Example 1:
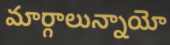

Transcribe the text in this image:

మార్గాలున్నాయో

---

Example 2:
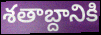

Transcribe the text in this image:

శతాబ్దానికి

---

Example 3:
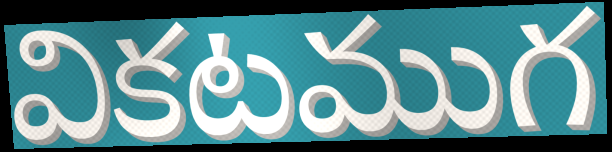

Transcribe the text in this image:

వికటముగ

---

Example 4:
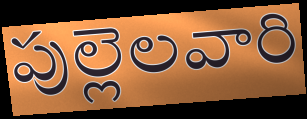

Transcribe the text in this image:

పుల్లెలవారి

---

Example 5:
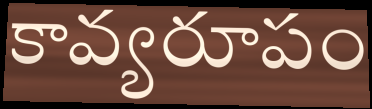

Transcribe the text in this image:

కావ్యరూపం